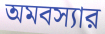
অমবস্যার